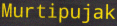
Murtipujak